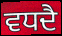
ਵਧਦੈ